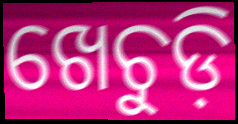
ଖେଚୁଡ଼ି